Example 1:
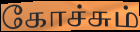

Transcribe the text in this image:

கோச்சும்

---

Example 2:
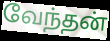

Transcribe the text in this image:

வேந்தன்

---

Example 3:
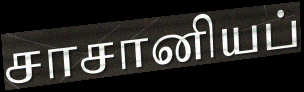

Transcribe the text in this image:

சாசானியப்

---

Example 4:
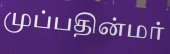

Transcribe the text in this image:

முப்பதின்மர்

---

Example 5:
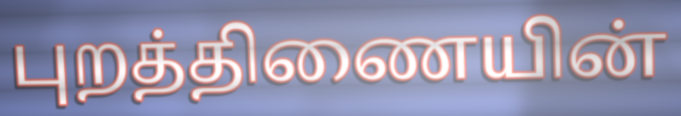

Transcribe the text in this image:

புறத்திணையின்